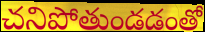
చనిపోతుండడంతో